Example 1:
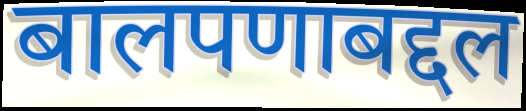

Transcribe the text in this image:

बालपणाबद्दल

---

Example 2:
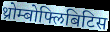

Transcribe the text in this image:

थ्रोम्बोफ्लिबिटिस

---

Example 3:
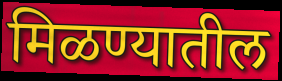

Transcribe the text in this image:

मिळण्यातील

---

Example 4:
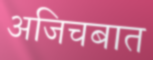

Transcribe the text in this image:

अजिचबात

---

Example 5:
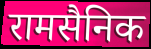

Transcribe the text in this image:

रामसैनिक